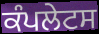
ਕੰਪਲੇਟਸ